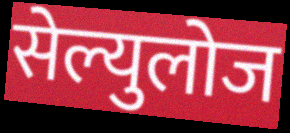
सेल्युलोज